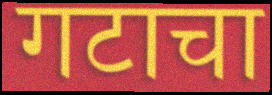
गटाचा